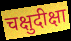
चक्षुदीक्षा